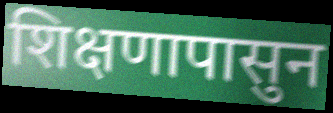
शिक्षणापासुन